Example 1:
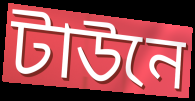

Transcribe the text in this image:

টাউনে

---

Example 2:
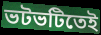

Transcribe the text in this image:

ভটভটিতেই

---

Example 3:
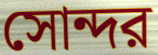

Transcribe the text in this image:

সোন্দর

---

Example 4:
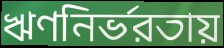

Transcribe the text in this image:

ঋণনির্ভরতায়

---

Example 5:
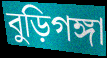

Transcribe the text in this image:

বুড়িগঙ্গা